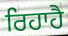
ਰਿਹਾਹੈ